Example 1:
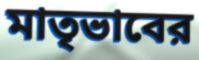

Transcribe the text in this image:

মাতৃভাবের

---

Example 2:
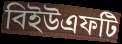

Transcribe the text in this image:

বিইউএফটি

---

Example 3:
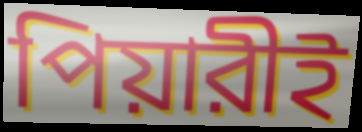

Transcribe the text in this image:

পিয়ারীই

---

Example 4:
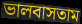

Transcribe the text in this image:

ভালবাসতাম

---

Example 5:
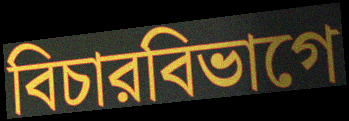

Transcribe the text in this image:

বিচারবিভাগে